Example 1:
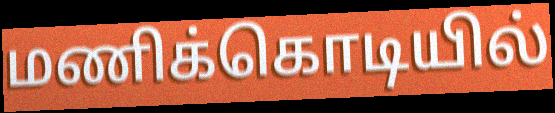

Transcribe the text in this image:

மணிக்கொடியில்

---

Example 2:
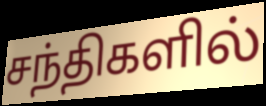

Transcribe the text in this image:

சந்திகளில்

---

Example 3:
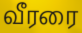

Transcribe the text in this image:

வீரரை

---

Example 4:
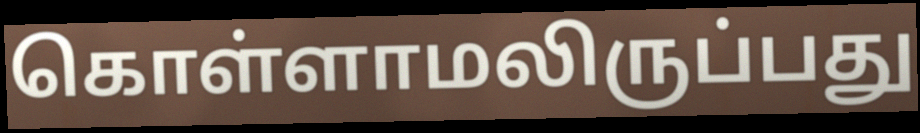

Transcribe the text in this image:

கொள்ளாமலிருப்பது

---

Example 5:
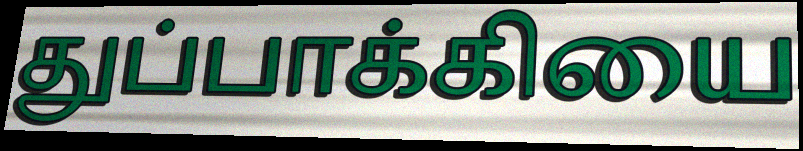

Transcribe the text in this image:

துப்பாக்கியை